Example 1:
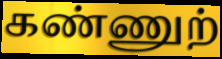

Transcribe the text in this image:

கண்ணுற்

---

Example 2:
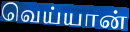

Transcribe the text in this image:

வெய்யான்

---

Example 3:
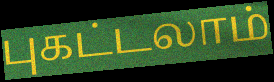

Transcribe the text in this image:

புகட்டலாம்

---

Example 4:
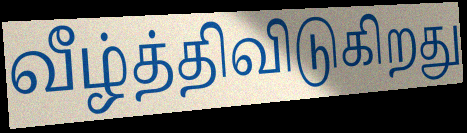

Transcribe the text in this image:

வீழ்த்திவிடுகிறது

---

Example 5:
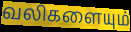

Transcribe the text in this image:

வலிகளையும்